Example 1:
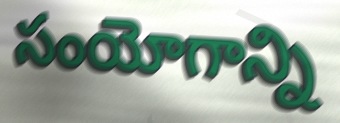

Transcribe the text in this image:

సంయోగాన్ని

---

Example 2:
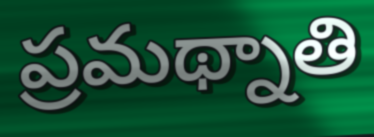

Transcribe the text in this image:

ప్రమథ్నాతి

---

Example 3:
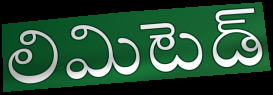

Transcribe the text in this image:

లిమిటెడ్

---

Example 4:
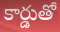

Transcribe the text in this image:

కార్డుతో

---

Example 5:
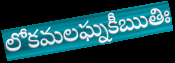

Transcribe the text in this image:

లోకమలఘ్నకీఋతిః